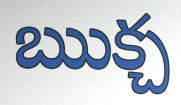
ఋక్చ